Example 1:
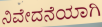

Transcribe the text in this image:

ನಿವೇದನೆಯಾಗಿ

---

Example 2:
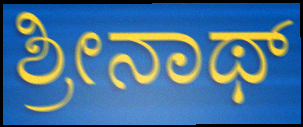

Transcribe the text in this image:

ಶ್ರೀನಾಥ್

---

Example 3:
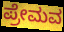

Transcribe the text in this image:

ಪ್ರೇಮವ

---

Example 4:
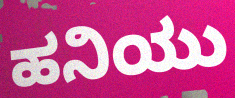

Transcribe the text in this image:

ಹನಿಯು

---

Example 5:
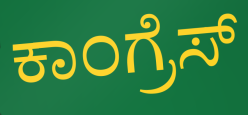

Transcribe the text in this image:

ಕಾಂಗ್ರೆಸ್